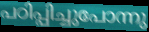
പഠിപ്പിച്ചുപോന്നു